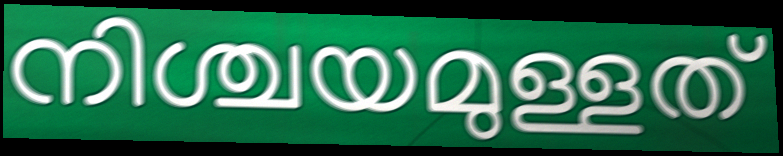
നിശ്ചയമുള്ളത്